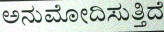
ಅನುಮೋದಿಸುತ್ತಿದೆ